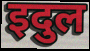
इदुल